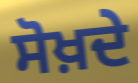
ਸੋਖ਼ਦੇ